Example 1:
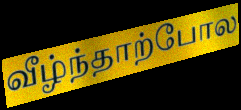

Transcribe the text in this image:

வீழ்ந்தாற்போல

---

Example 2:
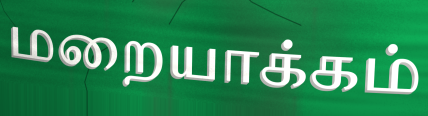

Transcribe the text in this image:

மறையாக்கம்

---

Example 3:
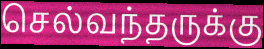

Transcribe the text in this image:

செல்வந்தருக்கு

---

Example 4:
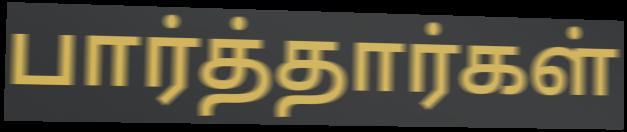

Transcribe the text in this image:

பார்த்தார்கள்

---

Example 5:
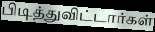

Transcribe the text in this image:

பிடித்துவிட்டார்கள்